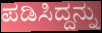
ಪಡಿಸಿದ್ದನ್ನು